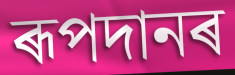
ৰূপদানৰ